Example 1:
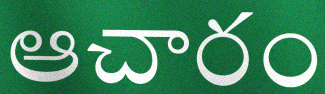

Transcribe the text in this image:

ఆచారం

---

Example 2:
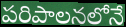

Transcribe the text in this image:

పరిపాలనలోనే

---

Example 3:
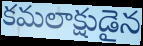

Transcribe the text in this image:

కమలాక్షుడైన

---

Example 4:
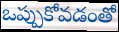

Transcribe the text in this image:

ఒప్పుకోవడంతో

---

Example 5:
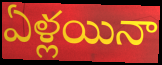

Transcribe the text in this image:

ఏళ్లయినా